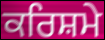
ਕਰਿਸ਼ਮੇ